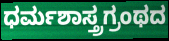
ಧರ್ಮಶಾಸ್ತ್ರಗ್ರಂಥದ